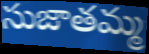
సుజాతమ్మ